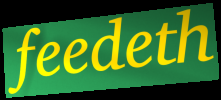
feedeth